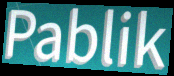
Pablik